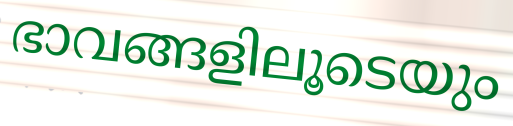
ഭാവങ്ങളിലൂടെയും